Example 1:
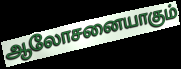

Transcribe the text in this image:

ஆலோசனையாகும்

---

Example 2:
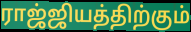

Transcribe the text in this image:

ராஜ்ஜியத்திற்கும்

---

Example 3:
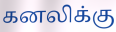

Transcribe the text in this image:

கனலிக்கு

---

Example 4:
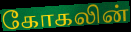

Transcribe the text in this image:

கோகலின்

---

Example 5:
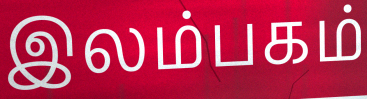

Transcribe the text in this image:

இலம்பகம்